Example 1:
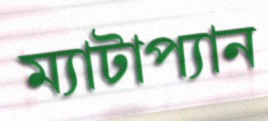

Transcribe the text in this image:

ম্যাটাপ্যান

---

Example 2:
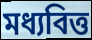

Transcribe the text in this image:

মধ্যবিত্ত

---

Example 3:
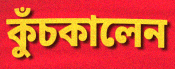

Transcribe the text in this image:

কুঁচকালেন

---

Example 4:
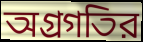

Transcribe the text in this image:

অগ্রগতির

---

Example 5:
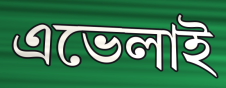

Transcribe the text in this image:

এভেলাই